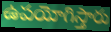
ఉపయోగిస్తారు